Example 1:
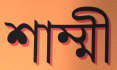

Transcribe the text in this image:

শাম্মী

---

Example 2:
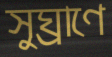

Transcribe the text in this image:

সুঘ্রাণে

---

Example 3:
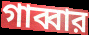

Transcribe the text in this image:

গাব্বার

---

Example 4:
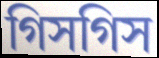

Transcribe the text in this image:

গিসগিস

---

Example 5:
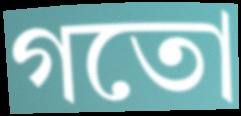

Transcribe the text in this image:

গতো